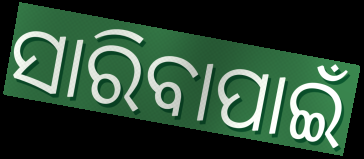
ସାରିବାପାଇଁ